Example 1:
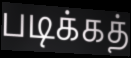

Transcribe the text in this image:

படிக்கத்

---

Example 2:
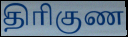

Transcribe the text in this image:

திரிகுண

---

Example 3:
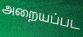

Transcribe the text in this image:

அறையப்பட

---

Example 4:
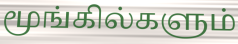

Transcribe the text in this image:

மூங்கில்களும்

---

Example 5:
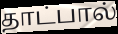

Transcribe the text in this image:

தாட்பால்